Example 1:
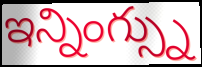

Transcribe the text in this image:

ఇన్నింగ్స్ను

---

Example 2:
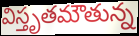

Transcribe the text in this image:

విస్తృతమౌతున్న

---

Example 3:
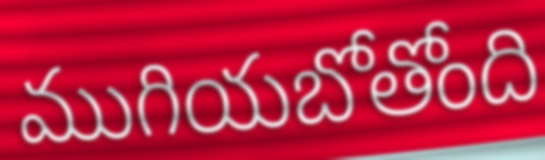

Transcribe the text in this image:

ముగియబోతోంది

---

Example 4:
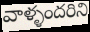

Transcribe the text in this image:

వాళ్ళందరిని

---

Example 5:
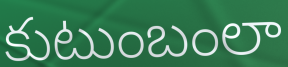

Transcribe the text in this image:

కుటుంబంలా